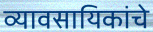
व्यावसायिकांचे